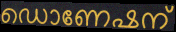
ഡൊണേഷന്